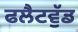
ਫਲੈਟਵੁੱਡ